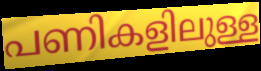
പണികളിലുള്ള